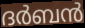
ദർബൻ